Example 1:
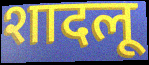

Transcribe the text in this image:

शादलू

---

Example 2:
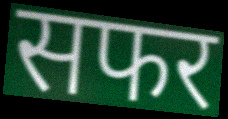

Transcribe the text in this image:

सफर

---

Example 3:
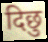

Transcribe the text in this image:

दिछु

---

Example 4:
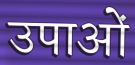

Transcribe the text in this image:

उपाओं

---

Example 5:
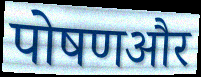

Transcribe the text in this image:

पोषणऔर